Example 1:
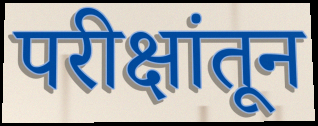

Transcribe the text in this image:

परीक्षांतून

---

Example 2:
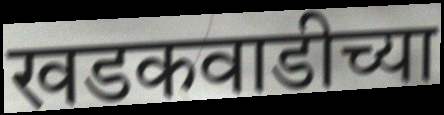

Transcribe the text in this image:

खडकवाडीच्या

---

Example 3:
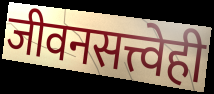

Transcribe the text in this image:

जीवनसत्त्वेही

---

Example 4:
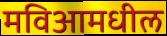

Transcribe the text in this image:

मविआमधील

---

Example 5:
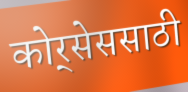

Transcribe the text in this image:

कोर्सेससाठी